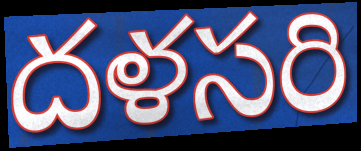
దళసరి